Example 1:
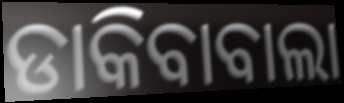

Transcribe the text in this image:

ଡାକିବାବାଲା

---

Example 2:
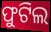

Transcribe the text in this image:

ଫୁଟିଲ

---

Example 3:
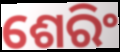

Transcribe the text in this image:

ଶେରିଂ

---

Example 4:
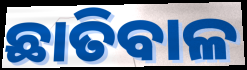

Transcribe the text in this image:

ଛାତିବାଳ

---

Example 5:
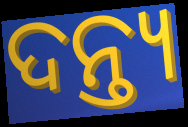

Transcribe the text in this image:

ଦନ୍ତ୍ଯ